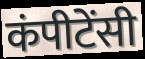
कंपीटेंसी